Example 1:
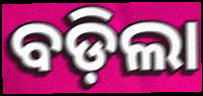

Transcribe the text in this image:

ବଡ଼ିଲା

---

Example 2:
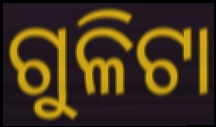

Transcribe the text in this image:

ଗୁଳିଟା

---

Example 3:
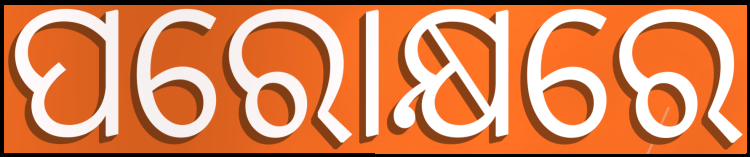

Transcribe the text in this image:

ପରୋକ୍ଷରେ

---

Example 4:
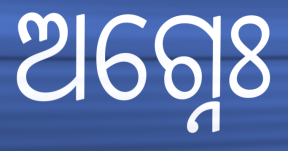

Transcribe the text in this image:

ଅଗ୍ନେଃ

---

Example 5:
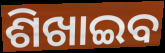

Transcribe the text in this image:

ଶିଖାଇବ